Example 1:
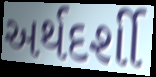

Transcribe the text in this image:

અર્થદર્શી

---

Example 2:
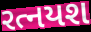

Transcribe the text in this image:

રત્નયશ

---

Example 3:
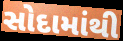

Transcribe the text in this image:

સોદામાંથી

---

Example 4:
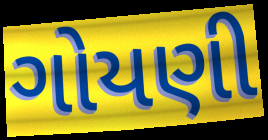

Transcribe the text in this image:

ગોયણી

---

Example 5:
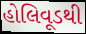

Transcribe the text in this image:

હોલિવૂડથી